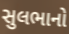
સુલભાનો